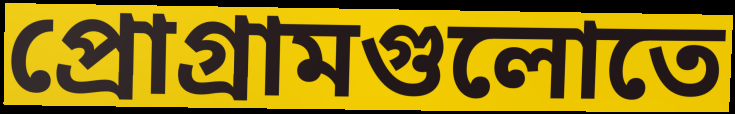
প্রোগ্রামগুলোতে